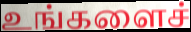
உங்களைச்